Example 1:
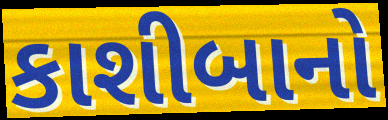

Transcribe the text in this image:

કાશીબાનો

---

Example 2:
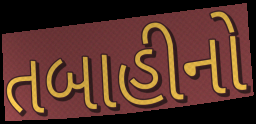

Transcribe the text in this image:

તબાહીનો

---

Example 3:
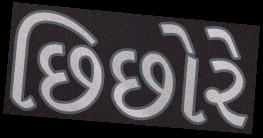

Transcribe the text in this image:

છિછોરે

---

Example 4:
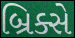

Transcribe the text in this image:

બ્રિક્સે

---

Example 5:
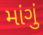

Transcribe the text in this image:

માંગું